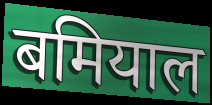
बमियाल